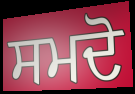
ਸਮਦੋ